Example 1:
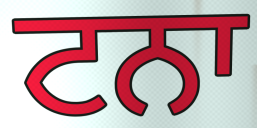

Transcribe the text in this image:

ਟਨਾ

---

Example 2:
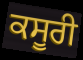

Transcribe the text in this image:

ਕਸੂਰੀ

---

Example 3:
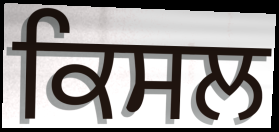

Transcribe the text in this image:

ਕਿਸਲ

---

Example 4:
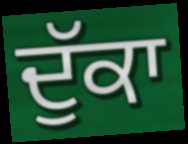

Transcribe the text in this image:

ਦੁੱਕਾ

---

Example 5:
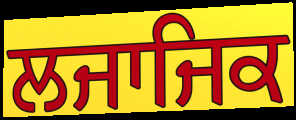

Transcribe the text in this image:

ਲਜਾਜਿਕ